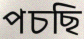
পচছি